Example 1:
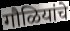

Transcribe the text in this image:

गौळियांचे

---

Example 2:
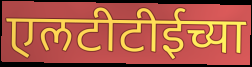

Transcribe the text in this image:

एलटीटीईच्या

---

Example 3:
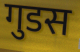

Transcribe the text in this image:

गुडस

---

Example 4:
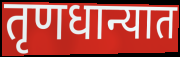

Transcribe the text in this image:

तृणधान्यात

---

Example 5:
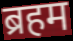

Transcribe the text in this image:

ब्रहम